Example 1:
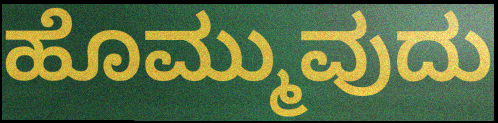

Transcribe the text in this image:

ಹೊಮ್ಮುವುದು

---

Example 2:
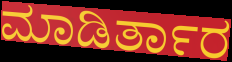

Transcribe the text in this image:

ಮಾಡಿರ್ತಾರ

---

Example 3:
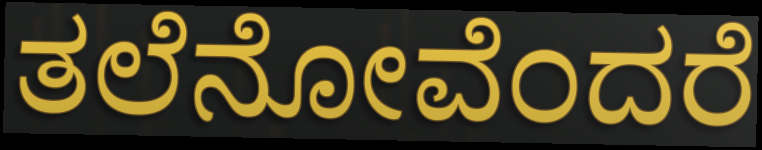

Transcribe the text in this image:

ತಲೆನೋವೆಂದರೆ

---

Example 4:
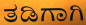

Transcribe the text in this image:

ತಡಿಗಾಗಿ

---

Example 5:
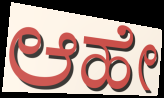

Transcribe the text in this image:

ಆಹೇ